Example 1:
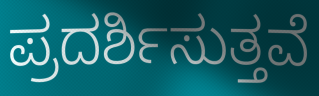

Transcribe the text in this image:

ಪ್ರದರ್ಶಿಸುತ್ತವೆ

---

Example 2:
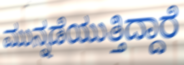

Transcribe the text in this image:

ಮುನ್ನಡೆಯುತ್ತಿದ್ದಾರೆ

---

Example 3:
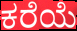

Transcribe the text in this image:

ಕರೆಯೆ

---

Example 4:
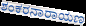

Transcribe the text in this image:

ಶಂಕರನಾರಾಯಣ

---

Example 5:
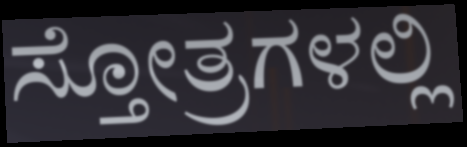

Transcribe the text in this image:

ಸ್ತೋತ್ರಗಳಲ್ಲಿ